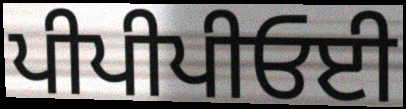
ਪੀਪੀਪੀਓਈ